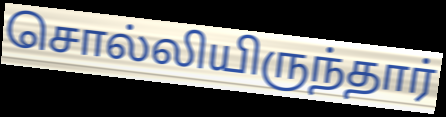
சொல்லியிருந்தார்